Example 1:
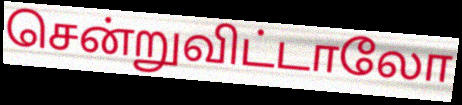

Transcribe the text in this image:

சென்றுவிட்டாலோ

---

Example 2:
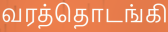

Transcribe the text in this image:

வரத்தொடங்கி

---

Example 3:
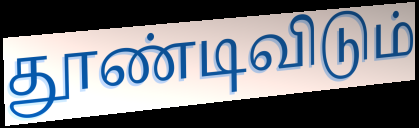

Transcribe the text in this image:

தூண்டிவிடும்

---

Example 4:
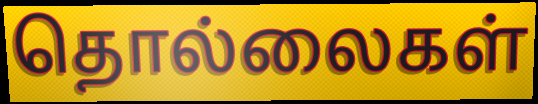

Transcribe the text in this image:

தொல்லைகள்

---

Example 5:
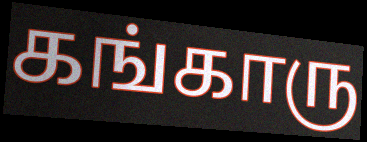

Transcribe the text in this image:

கங்காரு